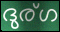
ദുര്ഗ